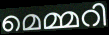
മെമ്മറി